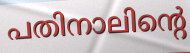
പതിനാലിന്റെ